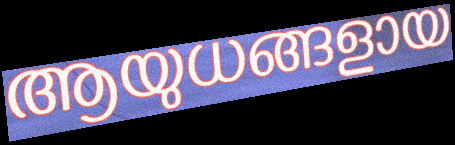
ആയുധങ്ങളായ